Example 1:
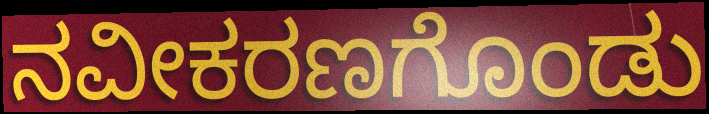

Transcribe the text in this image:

ನವೀಕರಣಗೊಂಡು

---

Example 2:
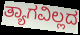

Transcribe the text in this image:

ತ್ಯಾಗವಿಲ್ಲದ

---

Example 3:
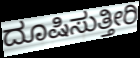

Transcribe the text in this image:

ದೂಷಿಸುತ್ತೀರಿ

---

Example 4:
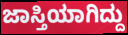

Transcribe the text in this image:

ಜಾಸ್ತಿಯಾಗಿದ್ದು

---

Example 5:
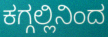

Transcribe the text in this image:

ಕಗ್ಗಲ್ಲಿನಿಂದ